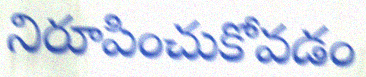
నిరూపించుకోవడం